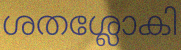
ശതശ്ലോകി